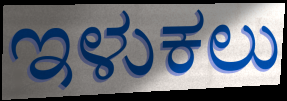
ಇಳುಕಲು